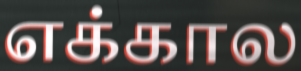
எக்கால